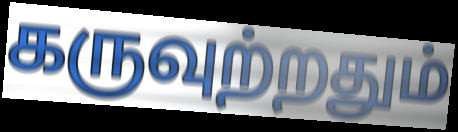
கருவுற்றதும்